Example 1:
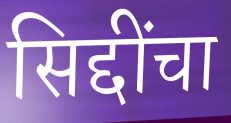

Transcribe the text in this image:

सिद्दींचा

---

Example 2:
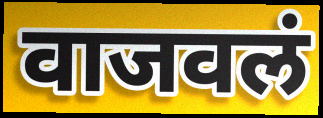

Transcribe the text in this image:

वाजवलं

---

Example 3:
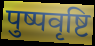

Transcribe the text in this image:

पुष्पवृष्टि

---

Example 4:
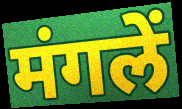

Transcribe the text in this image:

मंगलें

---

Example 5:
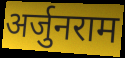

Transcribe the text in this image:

अर्जुनराम